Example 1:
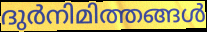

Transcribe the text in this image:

ദുർനിമിത്തങ്ങൾ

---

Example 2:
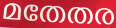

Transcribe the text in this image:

മതേതര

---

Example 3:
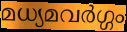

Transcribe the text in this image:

മധ്യമവർഗ്ഗം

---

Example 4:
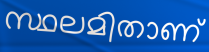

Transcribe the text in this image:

സ്ഥലമിതാണ്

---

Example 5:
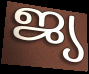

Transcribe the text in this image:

ജ്യ